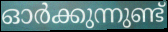
ഓർക്കുന്നുണ്ട്